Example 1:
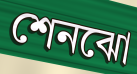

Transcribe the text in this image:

শেনঝো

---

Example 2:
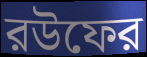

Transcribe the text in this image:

রউফের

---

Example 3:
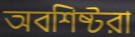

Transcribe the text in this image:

অবশিষ্টরা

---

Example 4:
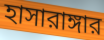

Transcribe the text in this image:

হাসারাঙ্গার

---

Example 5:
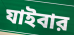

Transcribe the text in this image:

যাইবার